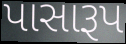
પાસારૂપ